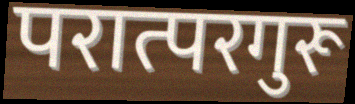
परात्परगुरू